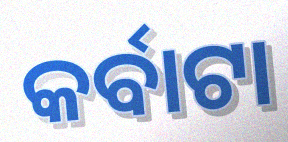
କର୍ବାଟା